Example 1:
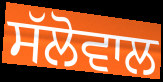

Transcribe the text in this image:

ਸੱਲੋਵਾਲ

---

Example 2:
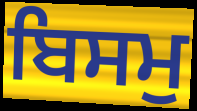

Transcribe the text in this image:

ਬਿਸਮੁ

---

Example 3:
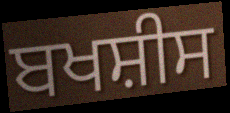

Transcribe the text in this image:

ਬਖਸ਼ੀਸ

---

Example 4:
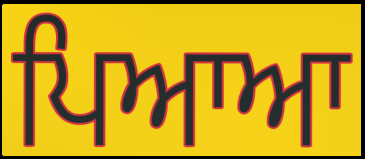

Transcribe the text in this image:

ਪਿਆਆ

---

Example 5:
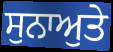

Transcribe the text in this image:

ਸੁਨਾਅੁਤੇ